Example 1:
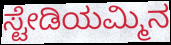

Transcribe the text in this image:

ಸ್ಟೇಡಿಯಮ್ಮಿನ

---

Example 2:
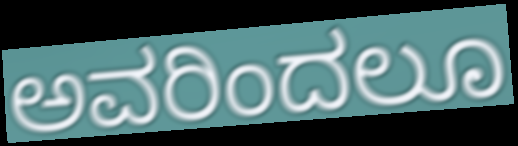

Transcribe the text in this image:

ಅವರಿಂದಲೂ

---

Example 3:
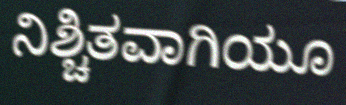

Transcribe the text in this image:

ನಿಶ್ಚಿತವಾಗಿಯೂ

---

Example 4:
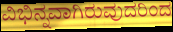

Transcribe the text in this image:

ವಿಭಿನ್ನವಾಗಿರುವುದರಿಂದ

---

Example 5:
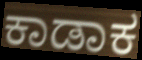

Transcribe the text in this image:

ಕಾಡಾಕ